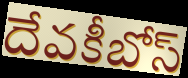
దేవకీబోస్